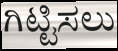
ಗಿಟ್ಟಿಸಲು